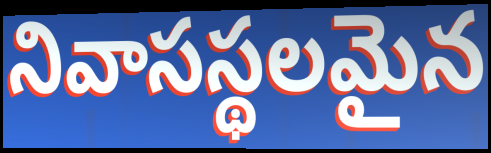
నివాసస్థలమైన